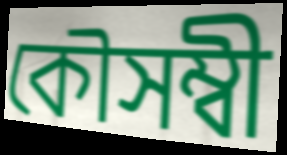
কৌসম্বী